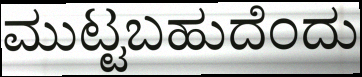
ಮುಟ್ಟಬಹುದೆಂದು